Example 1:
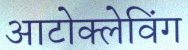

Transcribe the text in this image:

आटोक्लेविंग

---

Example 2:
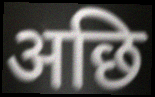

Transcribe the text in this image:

अछि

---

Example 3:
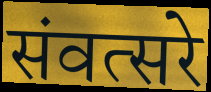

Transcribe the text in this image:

संवत्सरे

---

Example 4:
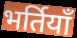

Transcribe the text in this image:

भर्तियाँ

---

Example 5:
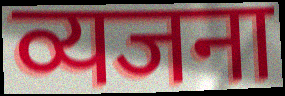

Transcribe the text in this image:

व्यजना